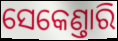
ସେକେଣ୍ତାରି